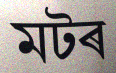
মটৰ